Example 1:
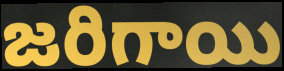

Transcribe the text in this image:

జరిగాయి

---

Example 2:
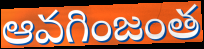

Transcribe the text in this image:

ఆవగింజంత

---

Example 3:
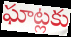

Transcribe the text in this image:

ఘాట్లకు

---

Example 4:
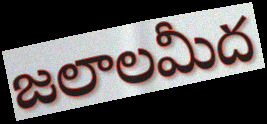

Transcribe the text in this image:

జలాలమీద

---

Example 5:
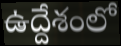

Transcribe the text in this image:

ఉద్దేశంలో